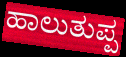
ಹಾಲುತುಪ್ಪ